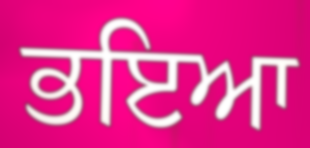
ਭਇਆ